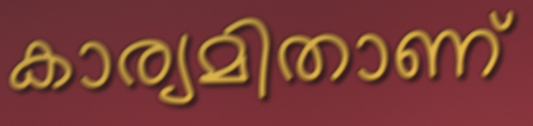
കാര്യമിതാണ്